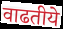
वाढतीये